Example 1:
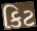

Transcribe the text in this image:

કિટ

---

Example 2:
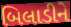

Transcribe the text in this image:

બિલાડીને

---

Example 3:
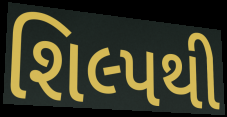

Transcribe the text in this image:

શિલ્પથી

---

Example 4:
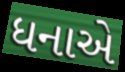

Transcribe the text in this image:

ધનાએ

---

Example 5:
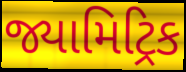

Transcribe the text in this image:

જ્યામિટ્રિક